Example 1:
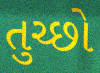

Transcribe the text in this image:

તુચ્છો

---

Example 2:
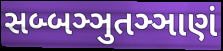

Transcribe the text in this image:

સબ્બઞ્ઞુતઞ્ઞાણં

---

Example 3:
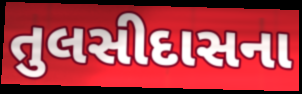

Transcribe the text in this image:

તુલસીદાસના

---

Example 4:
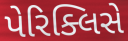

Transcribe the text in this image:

પેરિક્લિસે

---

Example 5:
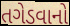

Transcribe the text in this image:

તગેડવાનો